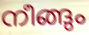
നീങ്ങും